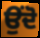
ਉਂਦੋ